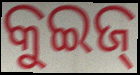
କୁଇଜ୍